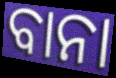
ବାନା